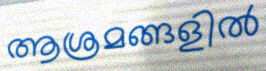
ആശ്രമങ്ങളിൽ